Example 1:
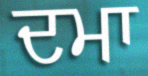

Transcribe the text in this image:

ਦਮਾ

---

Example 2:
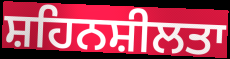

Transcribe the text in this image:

ਸ਼ਹਿਨਸ਼ੀਲਤਾ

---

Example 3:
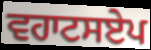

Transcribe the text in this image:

ਵਹਾਟਸਏਪ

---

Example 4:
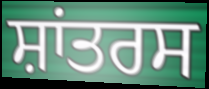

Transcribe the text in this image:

ਸ਼ਾਂਤਰਸ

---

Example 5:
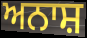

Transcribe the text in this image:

ਅਨਾਸ਼